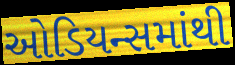
ઓડિયન્સમાંથી